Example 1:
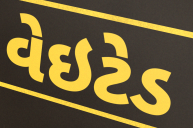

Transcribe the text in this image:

વેઇટેડ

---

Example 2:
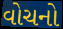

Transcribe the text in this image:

વોચનો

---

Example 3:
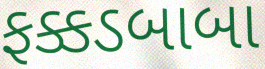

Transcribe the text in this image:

ફક્કડબાબા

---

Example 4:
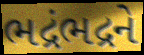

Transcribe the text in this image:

ભદ્રંભદ્રને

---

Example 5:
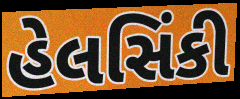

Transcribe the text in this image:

હેલસિંકી